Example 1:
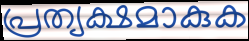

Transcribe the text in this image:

പ്രത്യക്ഷമാകുക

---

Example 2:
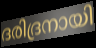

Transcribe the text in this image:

ദരിദ്രനായി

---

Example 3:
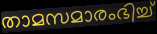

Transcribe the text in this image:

താമസമാരംഭിച്ച്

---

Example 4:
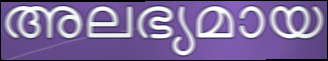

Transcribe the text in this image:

അലഭ്യമായ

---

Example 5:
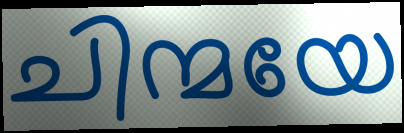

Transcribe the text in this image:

ചിന്മയേ